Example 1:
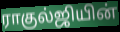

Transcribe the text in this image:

ராகுல்ஜியின்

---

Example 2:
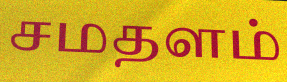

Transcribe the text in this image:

சமதளம்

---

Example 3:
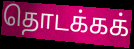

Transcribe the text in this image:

தொடக்கக்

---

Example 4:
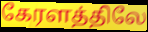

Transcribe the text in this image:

கேரளத்திலே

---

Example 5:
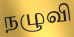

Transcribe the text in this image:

நழுவி